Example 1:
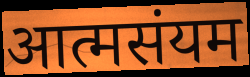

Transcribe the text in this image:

आत्मसंयम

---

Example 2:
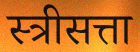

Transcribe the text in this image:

स्त्रीसत्ता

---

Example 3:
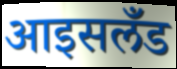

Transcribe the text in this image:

आइसलँड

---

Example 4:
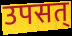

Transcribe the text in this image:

उपसत्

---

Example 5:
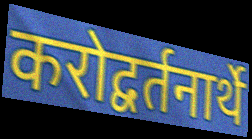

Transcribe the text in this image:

करोद्वर्तनार्थे